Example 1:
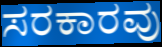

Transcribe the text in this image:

ಸರಕಾರವು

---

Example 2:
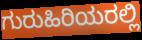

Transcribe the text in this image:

ಗುರುಹಿರಿಯರಲ್ಲಿ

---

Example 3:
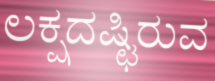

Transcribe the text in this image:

ಲಕ್ಷದಷ್ಟಿರುವ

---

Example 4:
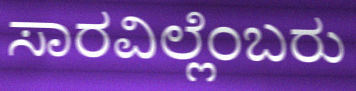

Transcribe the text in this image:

ಸಾರವಿಲ್ಲೆಂಬರು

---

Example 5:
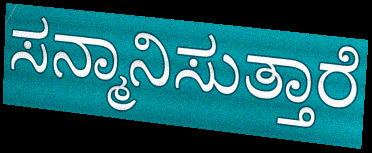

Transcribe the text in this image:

ಸನ್ಮಾನಿಸುತ್ತಾರೆ